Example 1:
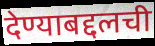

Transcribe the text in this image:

देण्याबद्दलची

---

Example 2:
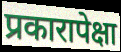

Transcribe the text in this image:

प्रकारापेक्षा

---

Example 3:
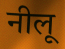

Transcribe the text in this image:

नीलू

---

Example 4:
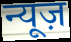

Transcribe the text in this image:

न्यूज़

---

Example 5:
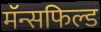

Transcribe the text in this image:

मॅन्सफिल्ड